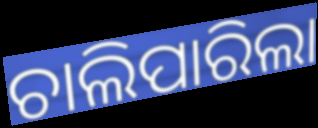
ଚାଲିପାରିଲା